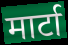
मार्टा